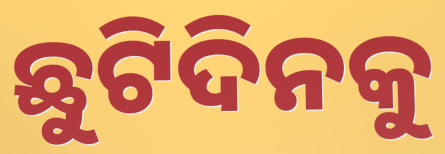
ଛୁଟିଦିନକୁ